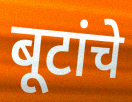
बूटांचे